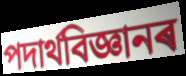
পদাৰ্থবিজ্ঞানৰ